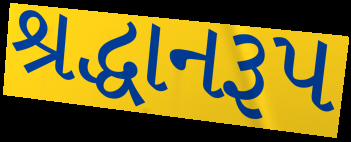
શ્રદ્ધાનરૂપ